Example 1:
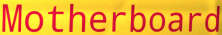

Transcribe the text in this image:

Motherboard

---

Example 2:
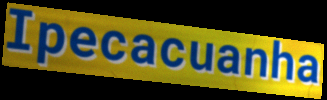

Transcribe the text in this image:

Ipecacuanha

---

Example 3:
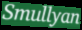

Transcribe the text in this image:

Smullyan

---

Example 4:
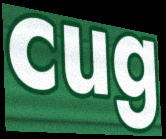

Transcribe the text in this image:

cug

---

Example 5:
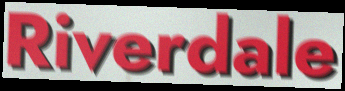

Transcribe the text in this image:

Riverdale